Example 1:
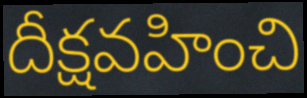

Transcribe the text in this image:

దీక్షవహించి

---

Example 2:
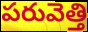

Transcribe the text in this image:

పరువెత్తి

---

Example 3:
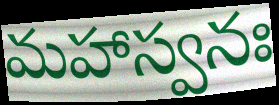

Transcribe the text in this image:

మహాస్వనః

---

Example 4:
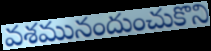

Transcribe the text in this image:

వశమునందుంచుకొని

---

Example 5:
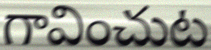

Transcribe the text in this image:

గావించుట